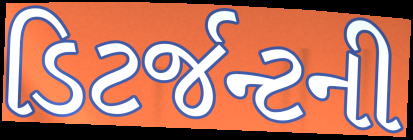
ડિટર્જન્ટની